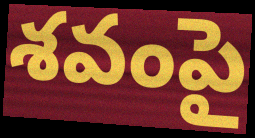
శవంపై